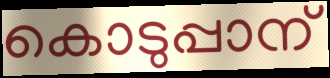
കൊടുപ്പാന്